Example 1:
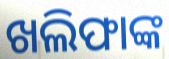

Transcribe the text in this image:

ଖଲିଫାଙ୍କ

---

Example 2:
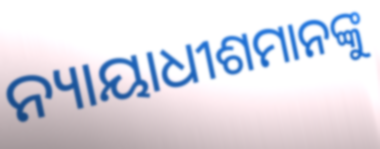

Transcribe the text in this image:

ନ୍ୟାୟାଧୀଶମାନଙ୍କୁ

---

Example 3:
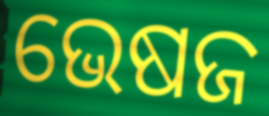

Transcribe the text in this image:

ଭେଷଜ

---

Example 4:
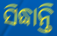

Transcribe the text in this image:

ସିଦ୍ଧାନ୍ତି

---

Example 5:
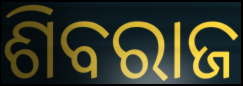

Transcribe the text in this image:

ଶିବରାଜ